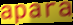
apara